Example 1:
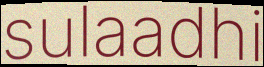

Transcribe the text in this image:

sulaadhi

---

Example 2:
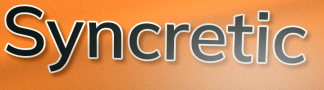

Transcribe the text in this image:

Syncretic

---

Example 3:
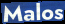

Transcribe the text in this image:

Malos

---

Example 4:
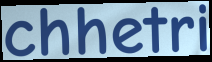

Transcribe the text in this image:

chhetri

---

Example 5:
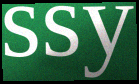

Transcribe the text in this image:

ssy